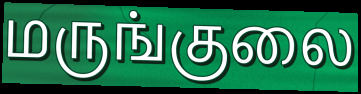
மருங்குலை